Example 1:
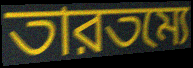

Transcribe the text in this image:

তারতম্যে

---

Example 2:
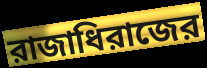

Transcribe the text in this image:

রাজাধিরাজের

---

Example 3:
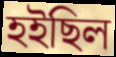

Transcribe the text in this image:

হইছিল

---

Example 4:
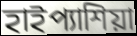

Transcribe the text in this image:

হাইপ্যাশিয়া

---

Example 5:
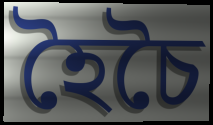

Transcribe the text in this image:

হৈচৈ